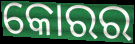
କୋରର